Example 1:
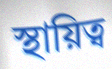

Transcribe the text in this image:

স্থায়িত্ব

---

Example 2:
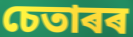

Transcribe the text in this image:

চেতাৰৰ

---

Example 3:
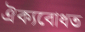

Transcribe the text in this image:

ঐক্যবোধত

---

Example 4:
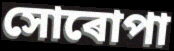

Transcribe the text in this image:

সোৰোপা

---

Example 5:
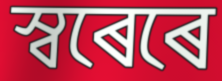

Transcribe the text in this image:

স্বৰেৰে